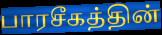
பாரசீகத்தின்